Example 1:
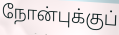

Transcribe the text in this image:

நோன்புக்குப்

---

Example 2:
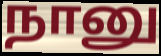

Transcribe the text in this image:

நானு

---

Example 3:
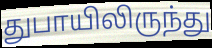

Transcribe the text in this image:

துபாயிலிருந்து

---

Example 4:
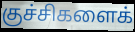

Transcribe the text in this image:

குச்சிகளைக்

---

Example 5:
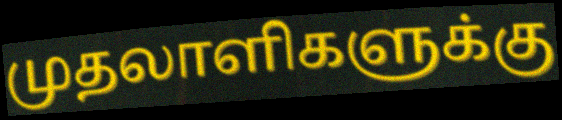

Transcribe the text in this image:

முதலாளிகளுக்கு